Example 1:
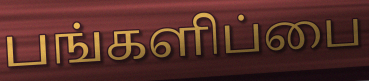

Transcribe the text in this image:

பங்களிப்பை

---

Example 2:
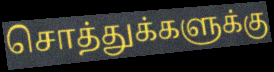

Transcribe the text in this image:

சொத்துக்களுக்கு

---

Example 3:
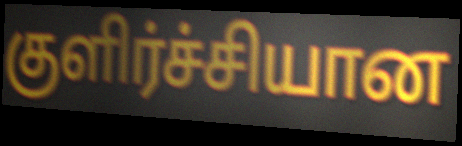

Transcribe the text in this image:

குளிர்ச்சியான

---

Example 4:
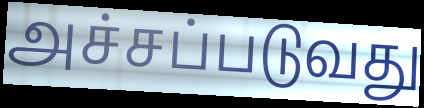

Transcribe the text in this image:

அச்சப்படுவது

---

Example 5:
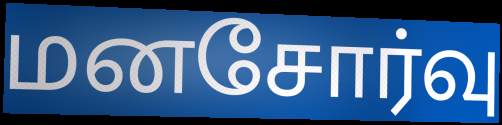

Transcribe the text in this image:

மனசோர்வு